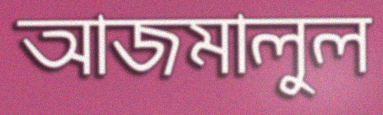
আজমালুল